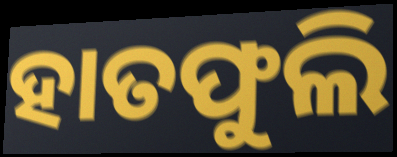
ହାତଫୁଲି